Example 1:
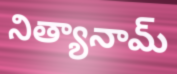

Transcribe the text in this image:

నిత్యానామ్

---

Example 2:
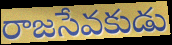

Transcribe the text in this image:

రాజసేవకుడు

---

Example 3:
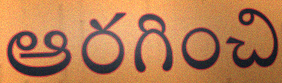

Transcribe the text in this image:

ఆరగించి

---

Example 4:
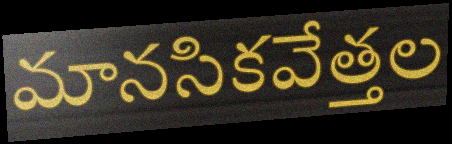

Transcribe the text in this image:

మానసికవేత్తల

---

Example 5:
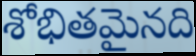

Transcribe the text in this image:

శోభితమైనది